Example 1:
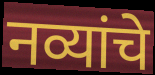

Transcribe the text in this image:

नव्यांचे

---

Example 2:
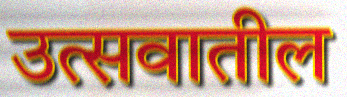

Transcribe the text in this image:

उत्सवातील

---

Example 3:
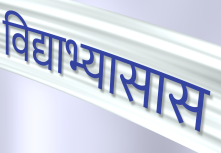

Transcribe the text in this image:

विद्याभ्यासास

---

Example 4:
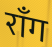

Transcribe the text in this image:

रॉंग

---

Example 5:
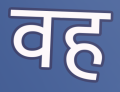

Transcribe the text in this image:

वह